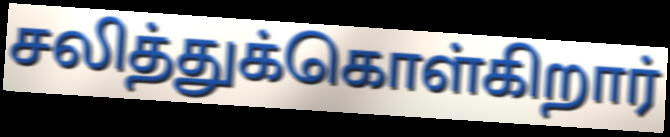
சலித்துக்கொள்கிறார்